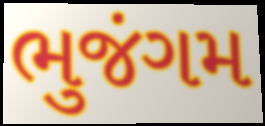
ભુજંગમ